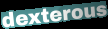
dexterous